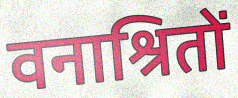
वनाश्रितों